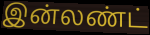
இன்லண்ட்